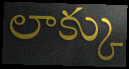
లాక్కు